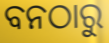
ବନଠାରୁ